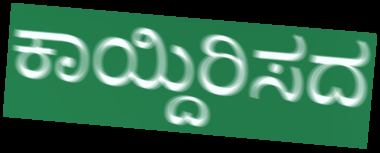
ಕಾಯ್ದಿರಿಸದ